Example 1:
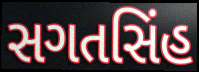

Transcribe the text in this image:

સગતસિંહ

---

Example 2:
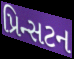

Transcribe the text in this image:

પ્રિન્સટન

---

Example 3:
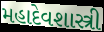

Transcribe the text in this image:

મહાદેવશાસ્ત્રી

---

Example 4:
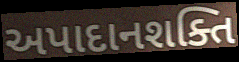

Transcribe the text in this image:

અપાદાનશક્તિ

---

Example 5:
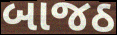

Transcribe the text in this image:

બાજઠ